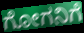
ಗೋಗನಿಗೆ